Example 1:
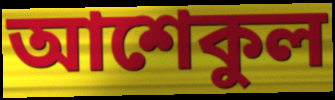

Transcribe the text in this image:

আশেকুল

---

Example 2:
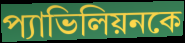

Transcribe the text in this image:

প্যাভিলিয়নকে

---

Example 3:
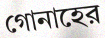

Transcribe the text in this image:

গোনাহের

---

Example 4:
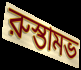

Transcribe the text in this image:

রুস্তামভ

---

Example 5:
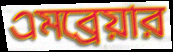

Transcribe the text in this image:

এমব্রেয়ার